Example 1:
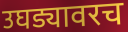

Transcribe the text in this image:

उघड्यावरच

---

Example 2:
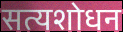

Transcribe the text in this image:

सत्यशोधन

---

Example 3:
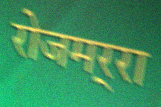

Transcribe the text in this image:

रोजमर्रा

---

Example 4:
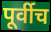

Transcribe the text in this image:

पूर्वीच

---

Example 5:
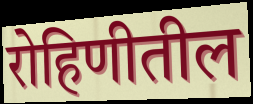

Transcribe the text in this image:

रोहिणीतील